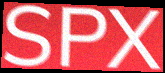
SPX